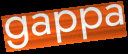
gappa